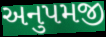
અનુપમજી